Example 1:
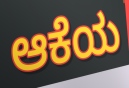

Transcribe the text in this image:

ಆಕೆಯ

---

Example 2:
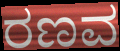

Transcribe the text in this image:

ರಣವ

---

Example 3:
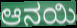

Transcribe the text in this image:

ಆನಯಿ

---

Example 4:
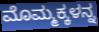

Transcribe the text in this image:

ಮೊಮ್ಮಕ್ಕಳನ್ನ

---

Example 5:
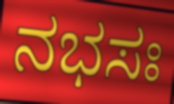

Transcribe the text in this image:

ನಭಸಃ